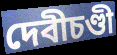
দেবীচণ্ডী